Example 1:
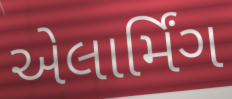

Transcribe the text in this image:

એલાર્મિંગ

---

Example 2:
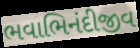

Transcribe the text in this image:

ભવાભિનંદીજીવ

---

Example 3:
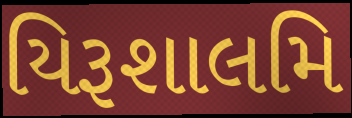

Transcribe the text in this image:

યિરૂશાલમિ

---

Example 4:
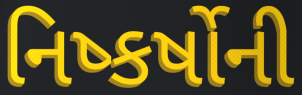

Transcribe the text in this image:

નિષ્કર્ષોની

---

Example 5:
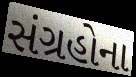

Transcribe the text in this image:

સંગ્રહોના